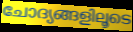
ചോദ്യങ്ങളിലൂടെ